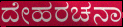
ದೇಹರಚನಾ